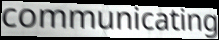
communicating